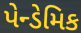
પેન્ડેમિક